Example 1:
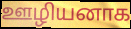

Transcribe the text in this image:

ஊழியனாக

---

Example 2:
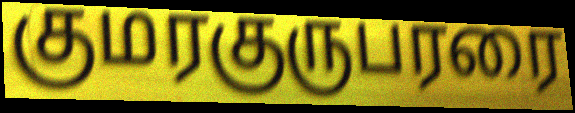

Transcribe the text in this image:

குமரகுருபரரை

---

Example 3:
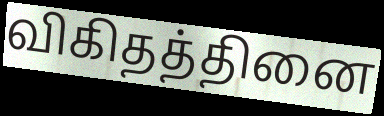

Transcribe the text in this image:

விகிதத்தினை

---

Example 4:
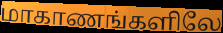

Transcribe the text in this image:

மாகாணங்களிலே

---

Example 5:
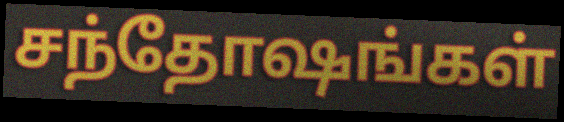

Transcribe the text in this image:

சந்தோஷங்கள்